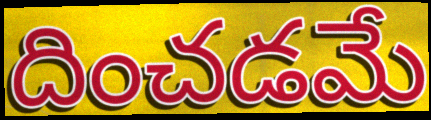
దించడమే